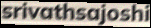
srivathsajoshi